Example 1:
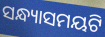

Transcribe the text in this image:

ସନ୍ଧ୍ୟାସମୟଟି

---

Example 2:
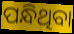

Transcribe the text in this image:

ପନ୍ଧିଥିବା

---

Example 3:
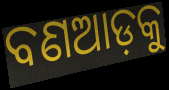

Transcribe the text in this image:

ବଣଆଡ଼କୁ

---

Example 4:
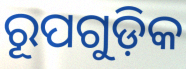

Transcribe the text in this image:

ରୂପଗୁଡ଼ିକ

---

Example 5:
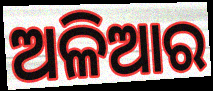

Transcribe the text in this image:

ଅଳିଆର